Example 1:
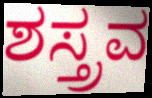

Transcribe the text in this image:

ಶಸ್ತ್ರವ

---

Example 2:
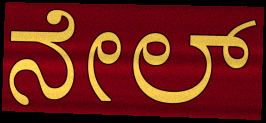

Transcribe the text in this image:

ನೇಲ್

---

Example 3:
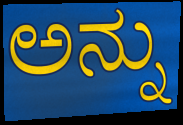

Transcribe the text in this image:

ಅನ್ನು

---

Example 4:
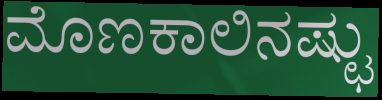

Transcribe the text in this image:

ಮೊಣಕಾಲಿನಷ್ಟು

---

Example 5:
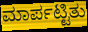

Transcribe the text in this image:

ಮಾರ್ಪಟ್ಟಿತು